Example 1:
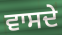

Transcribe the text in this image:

ਵਾਸਦੇ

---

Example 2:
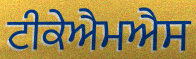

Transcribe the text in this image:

ਟੀਕੇਐਮਐਸ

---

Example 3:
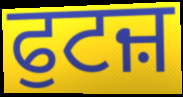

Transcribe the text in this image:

ਫੁਟਜ਼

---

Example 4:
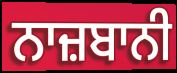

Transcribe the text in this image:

ਨਾਜ਼ਬਾਨੀ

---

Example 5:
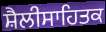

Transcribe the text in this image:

ਸ਼ੈਲੀਸਾਹਿਤਕ